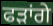
ਫੜਾਂਗੇ